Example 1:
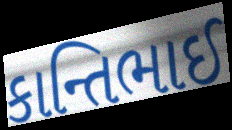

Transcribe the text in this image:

કાન્તિભાઈ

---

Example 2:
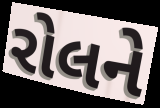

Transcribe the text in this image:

રોલને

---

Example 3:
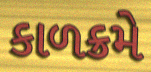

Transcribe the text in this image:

કાળક્રમે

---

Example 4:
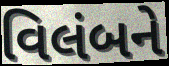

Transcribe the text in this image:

વિલંબને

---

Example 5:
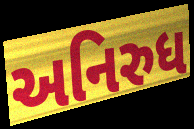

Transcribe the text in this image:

અનિરુધ